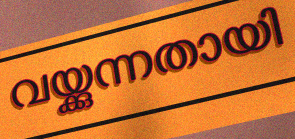
വയ്ക്കുന്നതായി